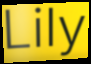
Lily